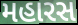
મહારસ